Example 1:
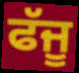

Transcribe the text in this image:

ਫੱਜੂ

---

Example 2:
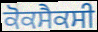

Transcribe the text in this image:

ਕੋਕਸੈਕਸੀ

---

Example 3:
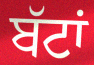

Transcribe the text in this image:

ਬੱਟਾਂ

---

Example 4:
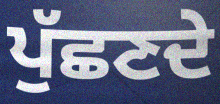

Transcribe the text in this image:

ਪੁੱਛਣਦੇ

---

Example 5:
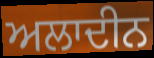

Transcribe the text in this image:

ਅਲਾਦੀਨ